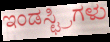
ಇಂಡಸ್ಟ್ರಿಗಳು